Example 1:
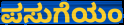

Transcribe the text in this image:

ಪಸುಗೆಯಂ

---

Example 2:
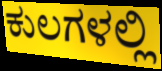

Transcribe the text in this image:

ಕುಲಗಳಲ್ಲಿ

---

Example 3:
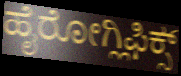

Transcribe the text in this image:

ಹೈರೋಗ್ಲಿಫಿಕ್ಸ್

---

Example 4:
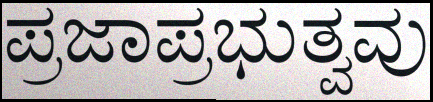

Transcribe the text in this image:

ಪ್ರಜಾಪ್ರಭುತ್ವವು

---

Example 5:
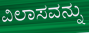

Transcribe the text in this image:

ವಿಲಾಸವನ್ನು